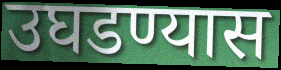
उघडण्यास